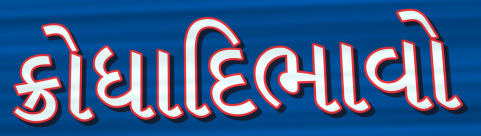
ક્રોધાદિભાવો